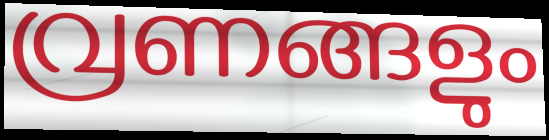
വ്രണങ്ങളും